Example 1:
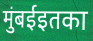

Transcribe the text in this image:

मुंबईइतका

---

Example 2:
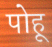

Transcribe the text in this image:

पोहू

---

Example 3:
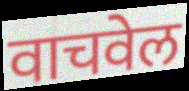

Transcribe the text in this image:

वाचवेल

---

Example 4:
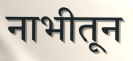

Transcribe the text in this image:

नाभीतून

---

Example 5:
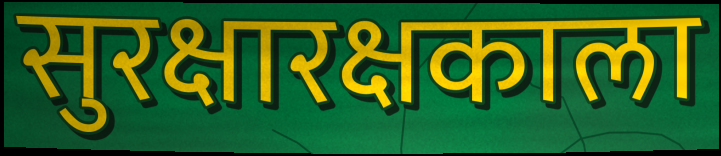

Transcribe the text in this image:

सुरक्षारक्षकाला